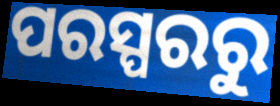
ପରସ୍ପରରୁ